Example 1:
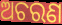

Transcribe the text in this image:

ଅଚରଣ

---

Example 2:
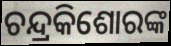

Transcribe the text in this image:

ଚନ୍ଦ୍ରକିଶୋରଙ୍କ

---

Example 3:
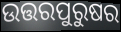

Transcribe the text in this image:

ଉତ୍ତରପୁରୁଷର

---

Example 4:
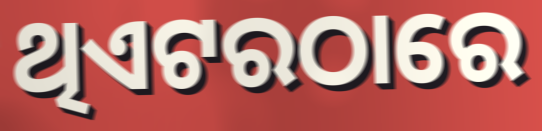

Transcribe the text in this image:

ଥିଏଟରଠାରେ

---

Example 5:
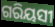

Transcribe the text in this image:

ଗରିୟସୀ